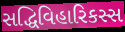
સદ્ધિવિહારિકસ્સ